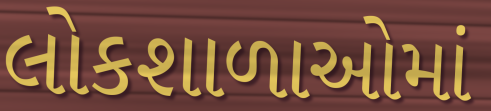
લોકશાળાઓમાં